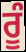
ਰੂੰ